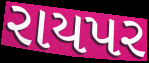
રાયપર